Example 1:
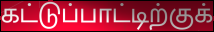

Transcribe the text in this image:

கட்டுப்பாட்டிற்குக்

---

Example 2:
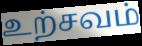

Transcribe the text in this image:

உற்சவம்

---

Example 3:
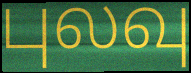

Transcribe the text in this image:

புலவு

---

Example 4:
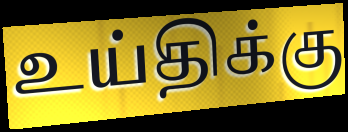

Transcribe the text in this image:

உய்திக்கு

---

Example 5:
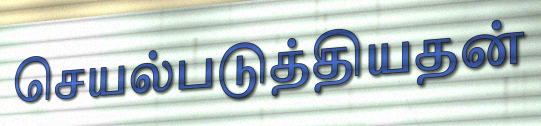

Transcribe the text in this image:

செயல்படுத்தியதன்